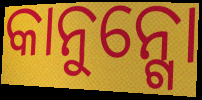
କାନୁନ୍ଗୋ